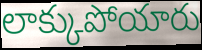
లాక్కుపోయారు